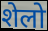
शेलो